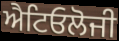
ਐਟਿਓਲੋਜੀ